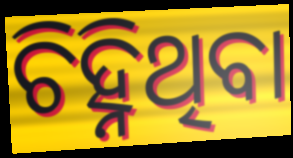
ଚିହ୍ନିଥିବା